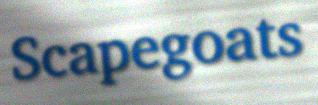
Scapegoats